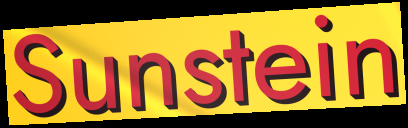
Sunstein